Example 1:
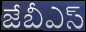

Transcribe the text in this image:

జేబీఎస్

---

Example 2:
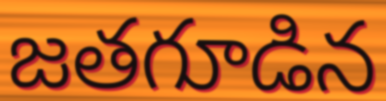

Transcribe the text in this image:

జతగూడిన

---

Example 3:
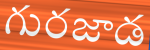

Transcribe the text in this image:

గురజాడ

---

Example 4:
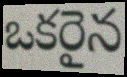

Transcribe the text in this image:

ఒకరైన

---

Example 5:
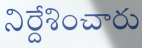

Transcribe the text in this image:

నిర్దేశించారు